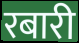
रबारी